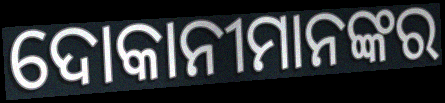
ଦୋକାନୀମାନଙ୍କର